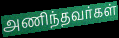
அணிந்தவர்கள்